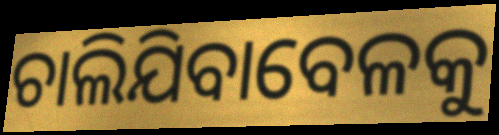
ଚାଲିଯିବାବେଳକୁ